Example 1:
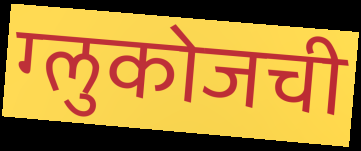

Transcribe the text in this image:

ग्लुकोजची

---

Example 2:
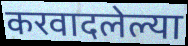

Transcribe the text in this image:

करवादलेल्या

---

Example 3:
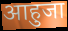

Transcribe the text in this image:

आहुजा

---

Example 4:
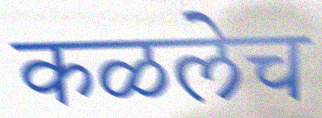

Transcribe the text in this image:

कळलेच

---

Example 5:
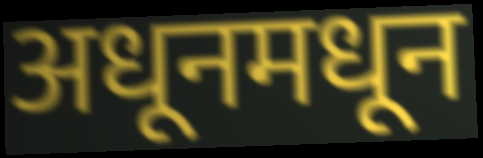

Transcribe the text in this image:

अधूनमधून